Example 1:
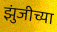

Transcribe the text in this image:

झुंजीच्या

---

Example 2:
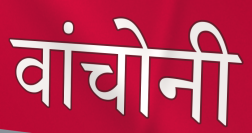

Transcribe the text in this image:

वांचोनी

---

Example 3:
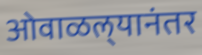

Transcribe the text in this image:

ओवाळल्यानंतर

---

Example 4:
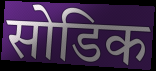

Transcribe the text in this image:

सोडिक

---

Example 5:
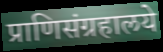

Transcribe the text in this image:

प्राणिसंग्रहालये